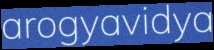
arogyavidya